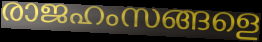
രാജഹംസങ്ങളെ